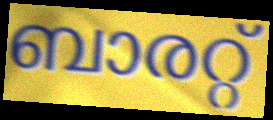
ബാരറ്റ്